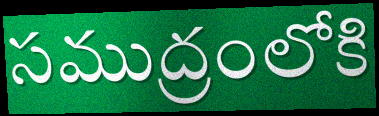
సముద్రంలోకి